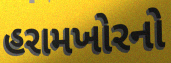
હરામખોરનો